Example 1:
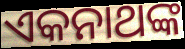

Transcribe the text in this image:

ଏକନାଥଙ୍କ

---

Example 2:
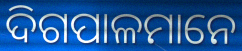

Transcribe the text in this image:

ଦିଗପାଳମାନେ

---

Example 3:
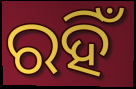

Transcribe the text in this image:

ରହିଁ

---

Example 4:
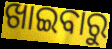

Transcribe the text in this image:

ଖାଇବାରୁ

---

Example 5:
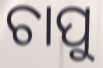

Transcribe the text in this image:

ଚାପୁ